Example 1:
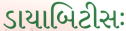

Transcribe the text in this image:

ડાયાબિટીસઃ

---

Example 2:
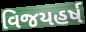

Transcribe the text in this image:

વિજયહર્ષ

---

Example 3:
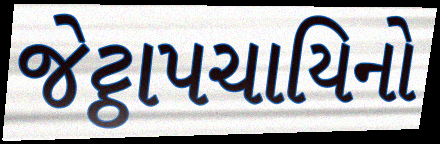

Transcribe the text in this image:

જેટ્ઠાપચાયિનો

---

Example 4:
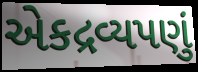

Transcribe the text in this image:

એકદ્રવ્યપણું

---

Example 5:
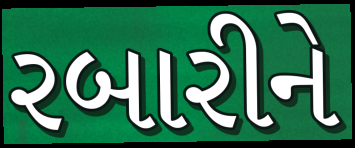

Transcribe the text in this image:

રબારીને